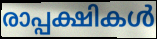
രാപ്പക്ഷികൾ